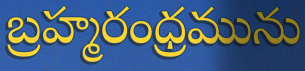
బ్రహ్మరంధ్రమును